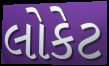
લોકેટ